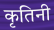
कृतिनी